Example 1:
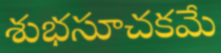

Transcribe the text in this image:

శుభసూచకమే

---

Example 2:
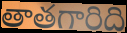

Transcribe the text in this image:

తాతగారిది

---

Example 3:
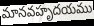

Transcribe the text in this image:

మానవహృదయము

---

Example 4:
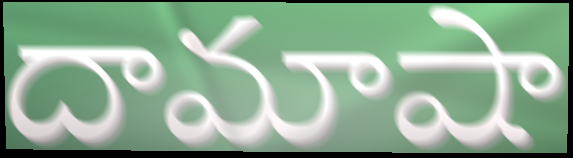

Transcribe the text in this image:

దామాషా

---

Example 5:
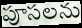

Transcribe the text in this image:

పూసలను